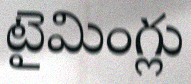
టైమింగ్లు